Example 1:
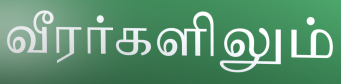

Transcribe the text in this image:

வீரர்களிலும்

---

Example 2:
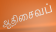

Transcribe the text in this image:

ஆதிசைவப்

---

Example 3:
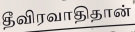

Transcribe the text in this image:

தீவிரவாதிதான்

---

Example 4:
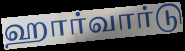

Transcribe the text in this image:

ஹார்வார்டு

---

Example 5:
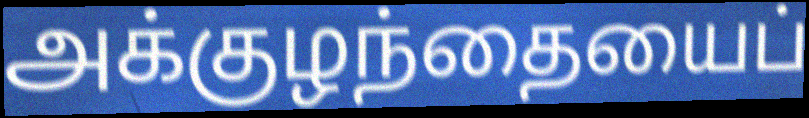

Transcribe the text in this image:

அக்குழந்தையைப்